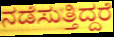
ನಡೆಸುತ್ತಿದ್ದರೆ